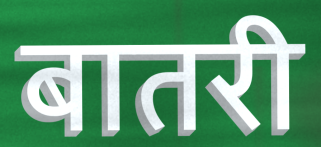
बातरी